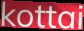
kottai